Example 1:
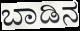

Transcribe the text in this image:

ಬಾಡಿನ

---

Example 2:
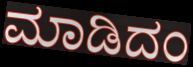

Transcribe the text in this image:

ಮಾಡಿದಂ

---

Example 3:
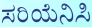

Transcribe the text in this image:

ಸರಿಯೆನಿಸಿ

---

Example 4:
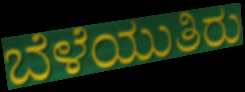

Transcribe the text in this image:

ಬೆಳೆಯುತಿರು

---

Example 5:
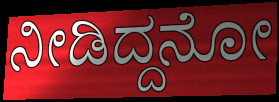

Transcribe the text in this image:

ನೀಡಿದ್ದನೋ